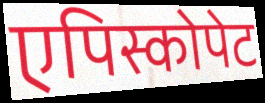
एपिस्कोपेट